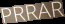
PRRAR